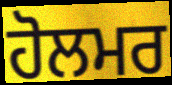
ਹੋਲਮਰ